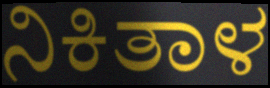
ನಿಕಿತಾಳ